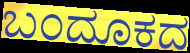
ಬಂದೂಕದ